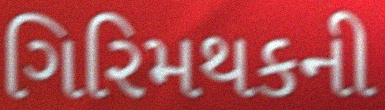
ગિરિમથકની